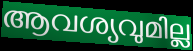
ആവശ്യവുമില്ല